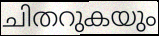
ചിതറുകയും